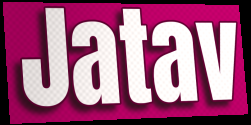
Jatav